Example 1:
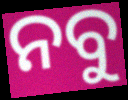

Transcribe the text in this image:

ନବୁ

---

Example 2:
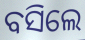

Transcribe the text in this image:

ବସିଲେ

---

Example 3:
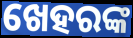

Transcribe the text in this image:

ଖେହରଙ୍କ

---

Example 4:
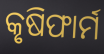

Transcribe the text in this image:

କୃଷିଫାର୍ମ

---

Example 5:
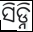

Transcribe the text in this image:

ସିଡ୍ନି